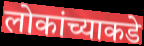
लोकांच्याकडे